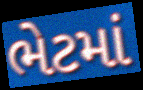
ભેટમાં